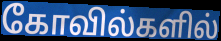
கோவில்களில்